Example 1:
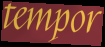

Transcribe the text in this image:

tempor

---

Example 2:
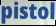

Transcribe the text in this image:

pistol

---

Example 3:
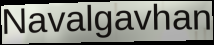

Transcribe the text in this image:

Navalgavhan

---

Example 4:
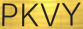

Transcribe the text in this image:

PKVY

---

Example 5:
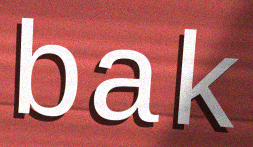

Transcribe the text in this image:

bak